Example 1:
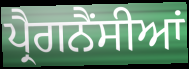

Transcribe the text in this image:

ਪ੍ਰੈਗਨੈਂਸੀਆਂ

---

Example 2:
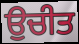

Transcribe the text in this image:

ਉਚੀਤ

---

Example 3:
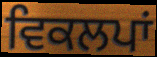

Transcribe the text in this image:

ਵਿਕਲਪਾਂ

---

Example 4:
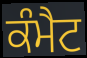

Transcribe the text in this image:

ਕੰਮੈਟ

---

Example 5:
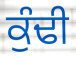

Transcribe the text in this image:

ਕੁੰਢੀ